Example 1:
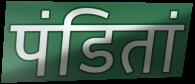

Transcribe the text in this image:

पंडितां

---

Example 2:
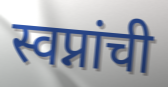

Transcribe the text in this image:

स्वप्नांची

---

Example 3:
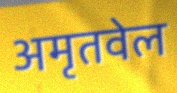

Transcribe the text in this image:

अमृतवेल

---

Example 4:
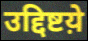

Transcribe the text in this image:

उद्दिष्टय़े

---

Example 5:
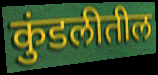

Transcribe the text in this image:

कुंडलीतील